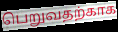
பெறுவதற்காக